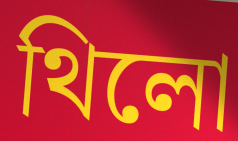
থিলো